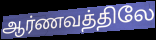
ஆர்ணவத்திலே